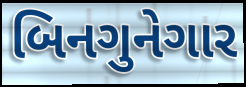
બિનગુનેગાર